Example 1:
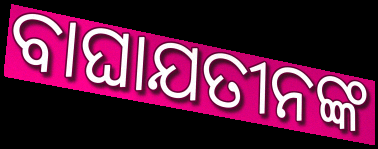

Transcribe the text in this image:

ବାଘାଯତୀନଙ୍କ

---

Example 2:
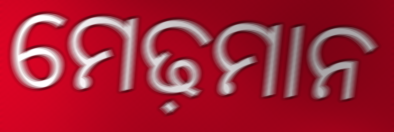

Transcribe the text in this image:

ମେଢ଼ମାନ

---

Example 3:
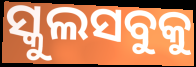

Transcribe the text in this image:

ସ୍କୁଲସବୁକୁ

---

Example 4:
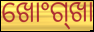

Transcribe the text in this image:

ଖୋଂଗ୍‍ଖା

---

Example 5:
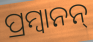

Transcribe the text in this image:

ପ୍ରମ୍ବାନନ୍